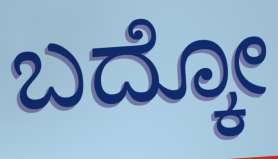
ಬದ್ಕೋ